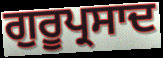
ਗੁਰੂਪ੍ਰਸਾਦ